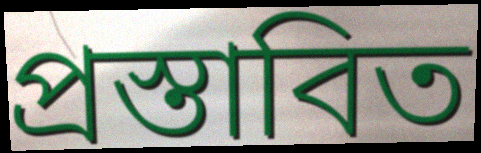
প্রস্তাবিত